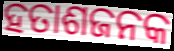
ହତାଶଜନକ